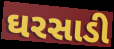
ઘરસાડી